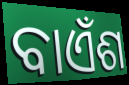
ବାଏଁଶ